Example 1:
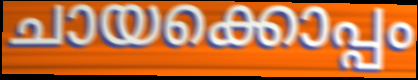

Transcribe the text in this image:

ചായക്കൊപ്പം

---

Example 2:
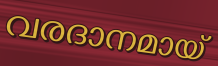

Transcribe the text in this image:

വരദാനമായ്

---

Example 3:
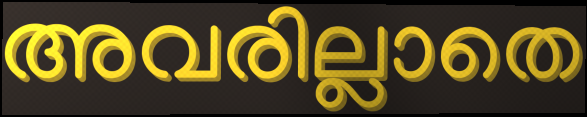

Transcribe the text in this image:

അവരില്ലാതെ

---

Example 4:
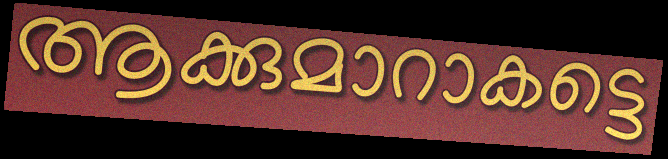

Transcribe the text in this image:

ആക്കുമാറാകട്ടെ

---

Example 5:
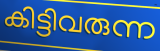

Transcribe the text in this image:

കിട്ടിവരുന്ന